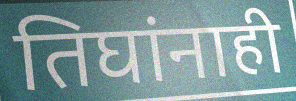
तिघांनाही